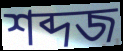
শব্দজ